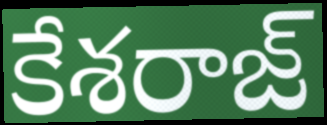
కేశరాజ్